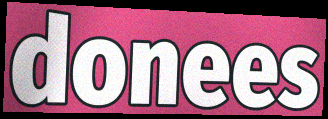
donees